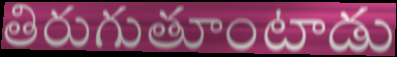
తిరుగుతూంటాడు